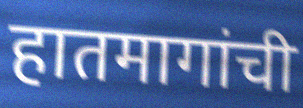
हातमागांची